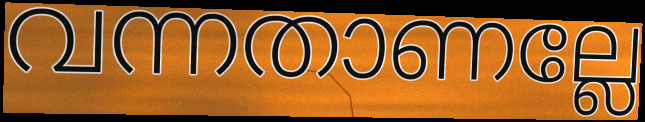
വന്നതാണല്ലേ